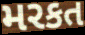
મરકત